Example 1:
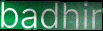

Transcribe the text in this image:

badhir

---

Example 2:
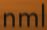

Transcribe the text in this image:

nml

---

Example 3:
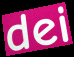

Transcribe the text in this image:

dei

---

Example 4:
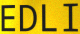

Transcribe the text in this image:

EDLI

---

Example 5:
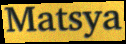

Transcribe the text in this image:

Matsya